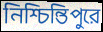
নিশ্চিন্তিপুরে